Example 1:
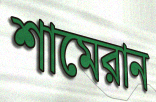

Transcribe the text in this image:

শামেরান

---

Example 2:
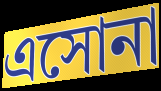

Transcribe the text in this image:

এসোনা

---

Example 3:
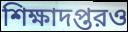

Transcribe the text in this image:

শিক্ষাদপ্তরও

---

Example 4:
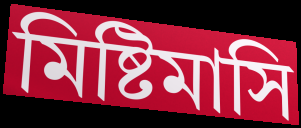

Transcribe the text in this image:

মিষ্টিমাসি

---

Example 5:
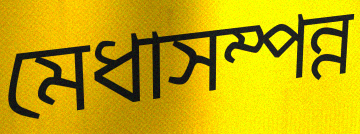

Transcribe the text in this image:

মেধাসম্পন্ন